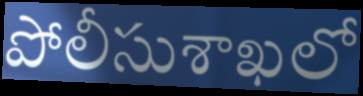
పోలీసుశాఖలో